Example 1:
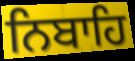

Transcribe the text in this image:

ਨਿਬਾਹਿ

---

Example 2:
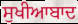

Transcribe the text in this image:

ਸੁਖੀਆਬਾਦ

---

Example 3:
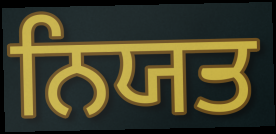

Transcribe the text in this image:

ਨਿਯਤ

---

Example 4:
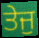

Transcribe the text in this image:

ਤੇਜੁ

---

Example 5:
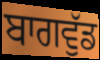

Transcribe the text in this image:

ਬਾਗਵੁੱਡ